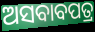
ଅସବାବପତ୍ର